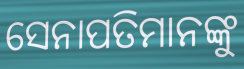
ସେନାପତିମାନଙ୍କୁ